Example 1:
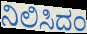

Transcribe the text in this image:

ನಿಲಿಸಿದಂ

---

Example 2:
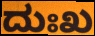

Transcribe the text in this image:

ದುಃಖ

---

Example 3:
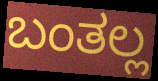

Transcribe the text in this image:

ಬಂತಲ್ಲ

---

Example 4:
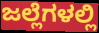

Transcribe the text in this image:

ಜಲ್ಲೆಗಳಲ್ಲಿ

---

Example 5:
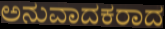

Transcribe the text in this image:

ಅನುವಾದಕರಾದ